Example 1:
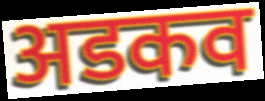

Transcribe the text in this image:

अडकव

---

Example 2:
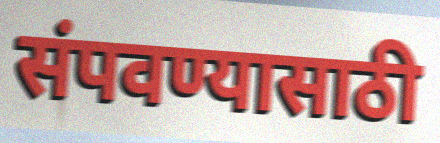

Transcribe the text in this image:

संपवण्यासाठी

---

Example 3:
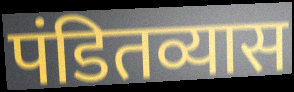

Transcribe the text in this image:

पंडितव्यास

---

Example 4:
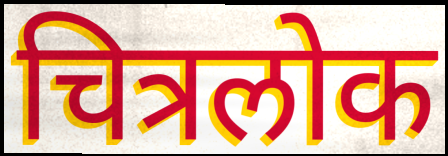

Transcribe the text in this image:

चित्रलोक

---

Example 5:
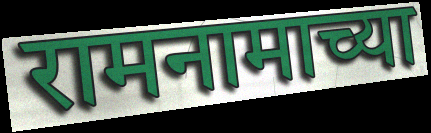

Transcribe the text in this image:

रामनामाच्या